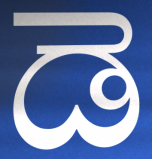
డె